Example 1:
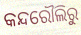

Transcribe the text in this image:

କନ୍ଦରୌଲିରୁ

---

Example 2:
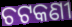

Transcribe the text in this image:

ଚଟକଣୀ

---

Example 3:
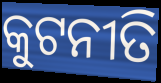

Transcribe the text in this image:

କୁଟନୀତି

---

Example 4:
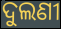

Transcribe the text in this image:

ଦୁଲଣୀ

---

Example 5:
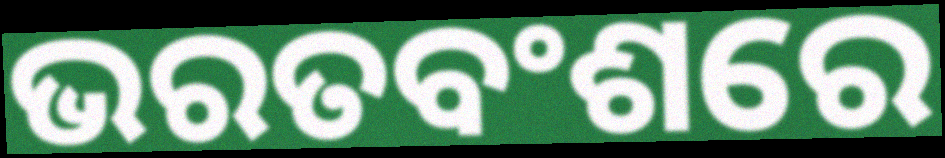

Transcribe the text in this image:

ଭରତବଂଶରେ